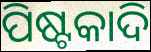
ପିଷ୍ଟକାଦି